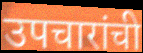
उपचारांची